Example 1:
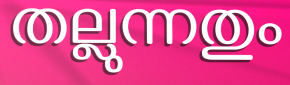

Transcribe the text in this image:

തല്ലുന്നതും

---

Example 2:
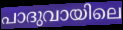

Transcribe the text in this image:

പാദുവായിലെ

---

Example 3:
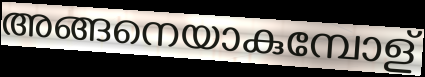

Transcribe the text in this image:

അങ്ങനെയാകുമ്പോള്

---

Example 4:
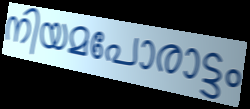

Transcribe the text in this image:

നിയമപോരാട്ടം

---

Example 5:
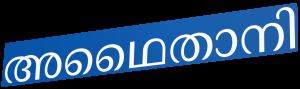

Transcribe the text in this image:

അഥൈതാനി